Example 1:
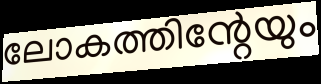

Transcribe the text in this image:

ലോകത്തിന്റേയും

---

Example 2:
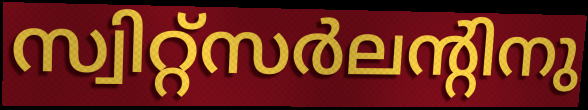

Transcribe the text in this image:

സ്വിറ്റ്സർലന്റിനു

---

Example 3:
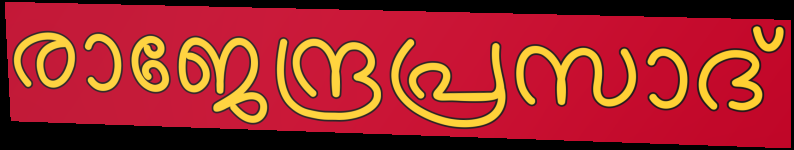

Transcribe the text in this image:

രാജേന്ദ്രപ്രസാദ്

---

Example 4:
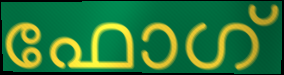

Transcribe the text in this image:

ഫോഗ്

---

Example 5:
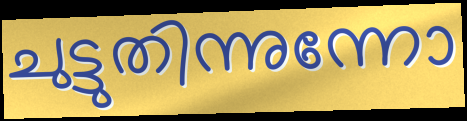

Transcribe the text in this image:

ചുട്ടുതിന്നുന്നോ